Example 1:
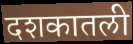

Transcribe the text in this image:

दशकातली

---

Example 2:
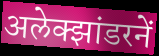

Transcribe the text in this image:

अलेक्झांडरनें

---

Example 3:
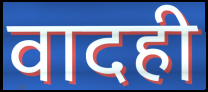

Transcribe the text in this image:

वादही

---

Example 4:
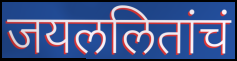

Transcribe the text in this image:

जयललितांचं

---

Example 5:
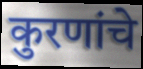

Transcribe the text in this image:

कुरणांचे